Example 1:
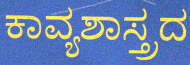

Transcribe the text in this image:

ಕಾವ್ಯಶಾಸ್ತ್ರದ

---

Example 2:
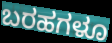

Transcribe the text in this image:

ಬರಹಗಳೂ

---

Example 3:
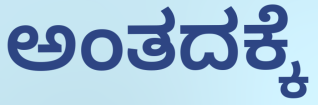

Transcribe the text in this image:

ಅಂತದಕ್ಕೆ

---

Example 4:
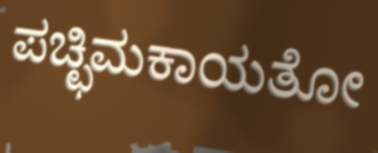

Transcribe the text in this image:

ಪಚ್ಛಿಮಕಾಯತೋ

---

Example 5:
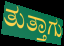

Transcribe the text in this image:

ತುತ್ತಾಗು